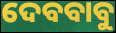
ଦେବବାବୁ